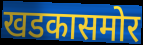
खडकासमोर